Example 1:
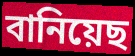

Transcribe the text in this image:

বানিয়েছ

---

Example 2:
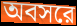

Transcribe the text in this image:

অবসরে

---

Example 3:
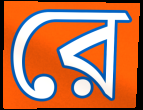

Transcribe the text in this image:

রে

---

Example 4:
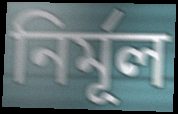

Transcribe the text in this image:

নির্মূল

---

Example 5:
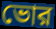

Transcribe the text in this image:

ভোর